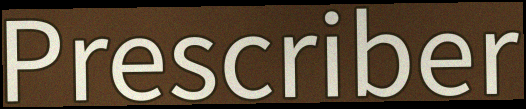
Prescriber